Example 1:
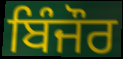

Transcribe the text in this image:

ਬਿੰਜੌਰ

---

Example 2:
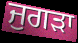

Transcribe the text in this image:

ਜੁਗੜਾ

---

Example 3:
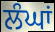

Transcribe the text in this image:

ਲੰਘਾਂ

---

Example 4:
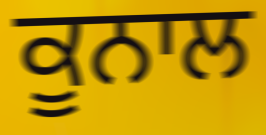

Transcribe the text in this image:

ਕੂਨਾਲ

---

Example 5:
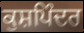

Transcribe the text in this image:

ਕੁਸ਼ਪਿੰਦਰ